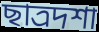
ছাত্রদশা